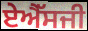
ਏਐੱਸਜੀ